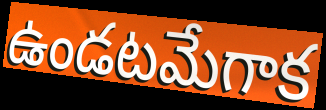
ఉండటమేగాక